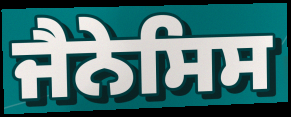
ਜੈਨੇਸਿਸ